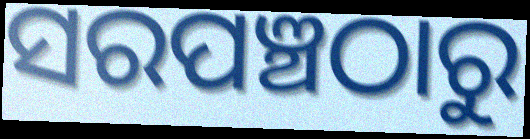
ସରପଞ୍ଚଠାରୁ